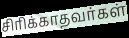
சிரிக்காதவர்கள்